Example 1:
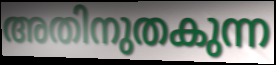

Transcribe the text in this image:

അതിനുതകുന്ന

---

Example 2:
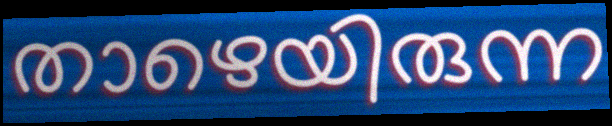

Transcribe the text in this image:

താഴെയിരുന്ന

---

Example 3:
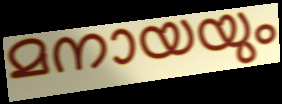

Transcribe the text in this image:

മനായയും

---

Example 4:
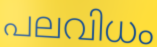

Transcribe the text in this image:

പലവിധം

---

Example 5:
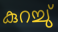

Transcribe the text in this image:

കുറച്ചു്